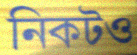
নিকটও